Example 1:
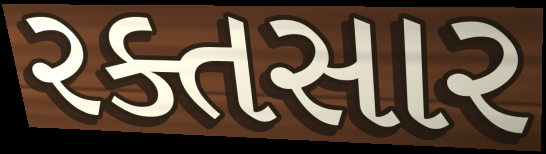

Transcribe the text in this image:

રક્તસાર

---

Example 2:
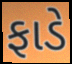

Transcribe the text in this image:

ફાડે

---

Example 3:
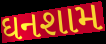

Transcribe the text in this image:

ઘનશામ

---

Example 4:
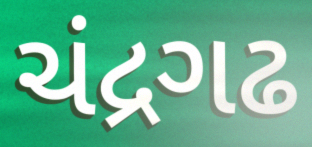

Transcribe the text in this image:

ચંદ્રગઢ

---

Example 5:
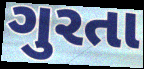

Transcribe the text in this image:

ગુરતા